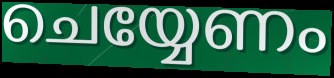
ചെയ്യേണം